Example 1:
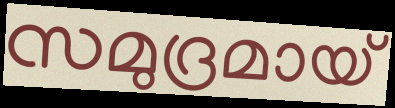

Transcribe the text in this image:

സമുദ്രമായ്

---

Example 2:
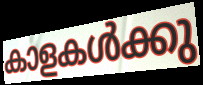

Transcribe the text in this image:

കാളകൾക്കു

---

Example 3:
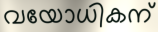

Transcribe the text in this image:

വയോധികന്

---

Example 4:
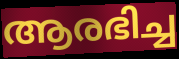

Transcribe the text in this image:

ആരഭിച്ച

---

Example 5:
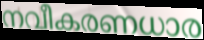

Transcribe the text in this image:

നവീകരണധാര